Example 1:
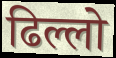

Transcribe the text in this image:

ढिल्लो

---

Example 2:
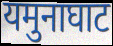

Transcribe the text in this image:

यमुनाघाट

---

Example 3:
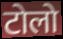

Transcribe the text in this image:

टोलो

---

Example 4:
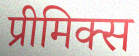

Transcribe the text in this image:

प्रीमिक्स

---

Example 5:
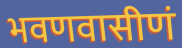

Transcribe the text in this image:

भवणवासीणं